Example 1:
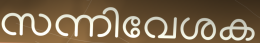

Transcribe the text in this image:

സന്നിവേശക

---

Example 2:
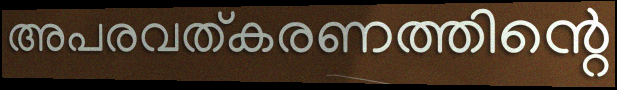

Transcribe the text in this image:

അപരവത്കരണത്തിന്റെ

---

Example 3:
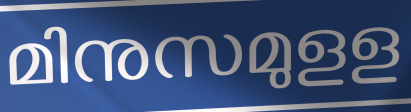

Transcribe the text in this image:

മിനുസമുളള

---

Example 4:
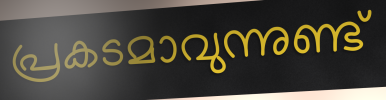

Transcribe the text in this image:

പ്രകടമാവുന്നുണ്ട്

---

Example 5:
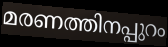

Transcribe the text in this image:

മരണത്തിനപ്പുറം